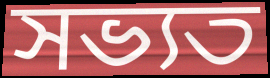
সভ্যত